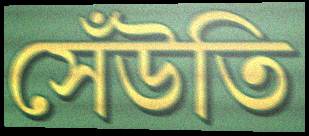
সেঁউতি